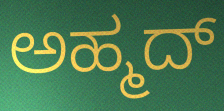
ಅಹ್ಮದ್